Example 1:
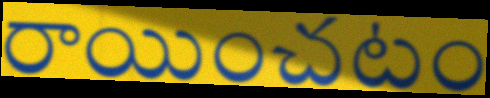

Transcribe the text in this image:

రాయించటం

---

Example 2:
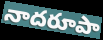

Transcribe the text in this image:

నాదరూపా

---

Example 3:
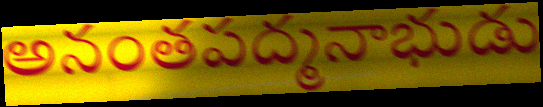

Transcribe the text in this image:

అనంతపద్మనాభుడు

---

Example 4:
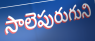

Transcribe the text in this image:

సాలెపురుగుని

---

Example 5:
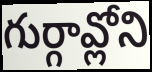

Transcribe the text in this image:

గుర్గావ్లోని